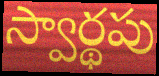
స్వార్థపు